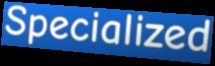
Specialized